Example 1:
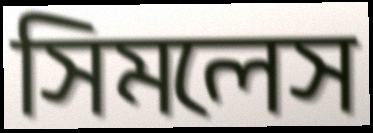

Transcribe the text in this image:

সিমলেস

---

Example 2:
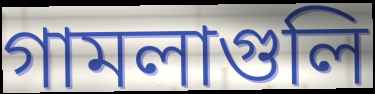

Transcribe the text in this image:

গামলাগুলি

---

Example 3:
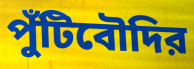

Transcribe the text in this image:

পুঁটিবৌদির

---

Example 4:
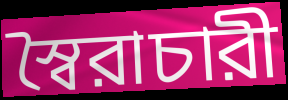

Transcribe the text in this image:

স্বৈরাচারী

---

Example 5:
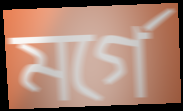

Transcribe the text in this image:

মর্গে